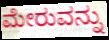
ಮೇರುವನ್ನು